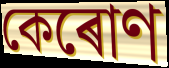
কেৰোণ